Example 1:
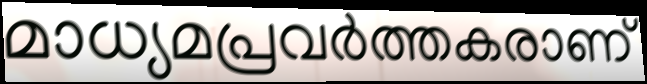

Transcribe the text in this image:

മാധ്യമപ്രവർത്തകരാണ്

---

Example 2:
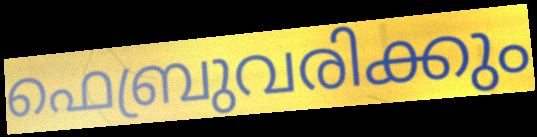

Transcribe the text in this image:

ഫെബ്രുവരിക്കും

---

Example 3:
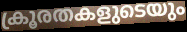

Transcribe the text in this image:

ക്രൂരതകളുടെയും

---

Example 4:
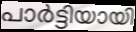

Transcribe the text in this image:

പാർട്ടിയായി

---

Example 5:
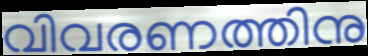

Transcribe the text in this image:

വിവരണത്തിനു